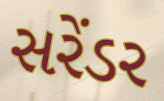
સરેંડર